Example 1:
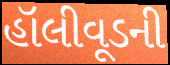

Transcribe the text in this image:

હૉલીવૂડની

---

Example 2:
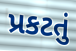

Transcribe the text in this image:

પ્રકટતું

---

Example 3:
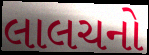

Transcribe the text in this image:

લાલચનો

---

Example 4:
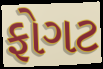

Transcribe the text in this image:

ફોગટ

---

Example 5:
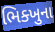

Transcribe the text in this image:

ભિક્ખુના